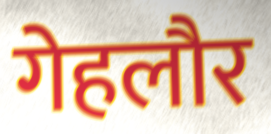
गेहलौर